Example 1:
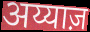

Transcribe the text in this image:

अय्याज़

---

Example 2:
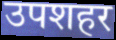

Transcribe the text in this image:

उपशहर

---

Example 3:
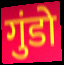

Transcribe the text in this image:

गुंडो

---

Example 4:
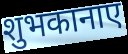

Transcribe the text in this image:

शुभकानाए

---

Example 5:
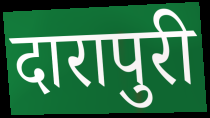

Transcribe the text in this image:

दारापुरी